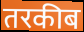
तरकीब